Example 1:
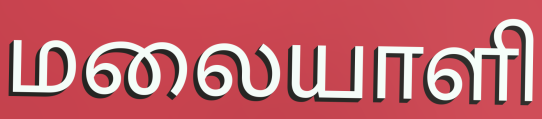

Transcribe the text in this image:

மலையாளி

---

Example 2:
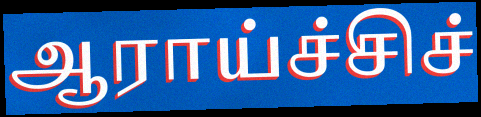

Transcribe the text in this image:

ஆராய்ச்சிச்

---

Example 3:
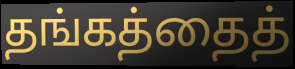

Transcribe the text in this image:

தங்கத்தைத்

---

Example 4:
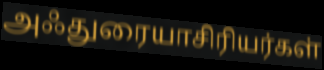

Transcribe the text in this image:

அஃதுரையாசிரியர்கள்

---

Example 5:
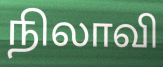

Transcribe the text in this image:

நிலாவி